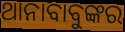
ଥାନାବାବୁଙ୍କର